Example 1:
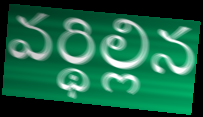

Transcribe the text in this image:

వర్థిల్లిన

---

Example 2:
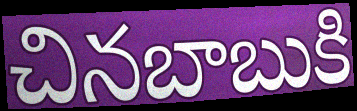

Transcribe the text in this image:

చినబాబుకి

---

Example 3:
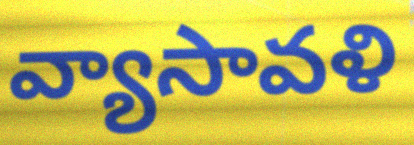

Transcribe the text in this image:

వ్యాసావళి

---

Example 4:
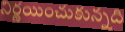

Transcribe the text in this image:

నిర్ణయించుకున్నది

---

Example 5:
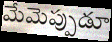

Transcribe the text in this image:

మేమెప్పుడూ